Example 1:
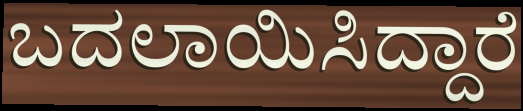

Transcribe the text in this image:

ಬದಲಾಯಿಸಿದ್ದಾರೆ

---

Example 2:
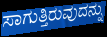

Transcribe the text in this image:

ಸಾಗುತ್ತಿರುವುದನ್ನು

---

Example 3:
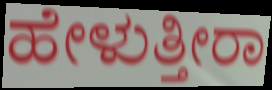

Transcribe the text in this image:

ಹೇಳುತ್ತೀರಾ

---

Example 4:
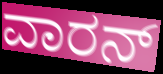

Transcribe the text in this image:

ವಾರನ್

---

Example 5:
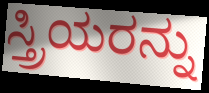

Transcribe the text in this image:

ಸ್ತ್ರಿಯರನ್ನು